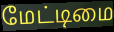
மேட்டிமை